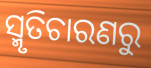
ସ୍ମୃତିଚାରଣରୁ